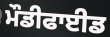
ਮੌਡੀਫਾਈਡ